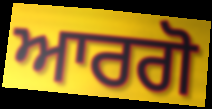
ਆਰਗੋ